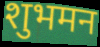
शुभमन